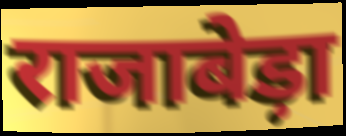
राजाबेड़ा